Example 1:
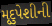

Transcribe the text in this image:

મૃદુપેશીની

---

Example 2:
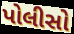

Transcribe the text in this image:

પોલીસો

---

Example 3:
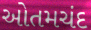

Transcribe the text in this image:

ઓતમચંદ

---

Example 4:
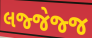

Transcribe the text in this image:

લજ્જેજ્જ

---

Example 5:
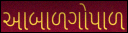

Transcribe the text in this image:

આબાળગોપાળ